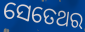
ସେତେଥର